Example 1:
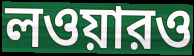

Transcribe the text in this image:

লওয়ারও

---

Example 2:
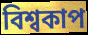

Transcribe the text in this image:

বিশ্বকাপ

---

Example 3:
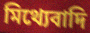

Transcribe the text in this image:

মিথ্যেবাদি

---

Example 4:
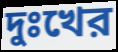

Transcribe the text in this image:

দুঃখের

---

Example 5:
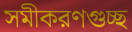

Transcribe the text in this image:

সমীকরণগুচ্ছ